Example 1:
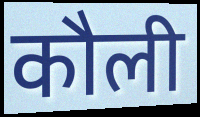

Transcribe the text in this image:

कौली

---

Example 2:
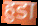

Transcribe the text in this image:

हुडा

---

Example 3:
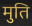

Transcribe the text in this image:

मुति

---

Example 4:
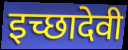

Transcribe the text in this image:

इच्छादेवी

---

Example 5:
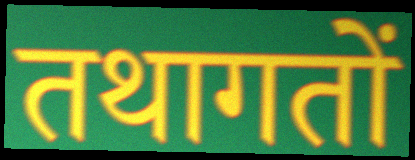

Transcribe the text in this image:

तथागतों